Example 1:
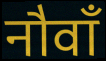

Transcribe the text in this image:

नौवाँ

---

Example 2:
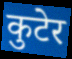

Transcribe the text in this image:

कुटेर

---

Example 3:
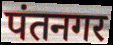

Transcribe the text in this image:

पंतनगर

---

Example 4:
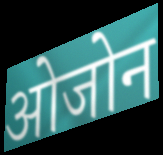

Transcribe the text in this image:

ओजोन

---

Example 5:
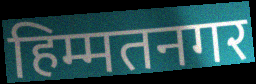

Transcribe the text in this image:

हिम्‍मतनगर